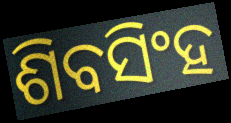
ଶିବସିଂହ